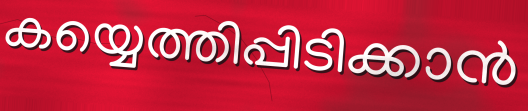
കയ്യെത്തിപ്പിടിക്കാൻ